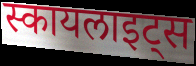
स्कायलाइट्स